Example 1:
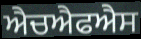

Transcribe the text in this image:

ਐਚਐਫਐਸ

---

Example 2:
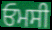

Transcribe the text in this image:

ਓਮਸੀ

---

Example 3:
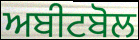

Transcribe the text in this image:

ਅਬੀਟਬੋਲ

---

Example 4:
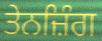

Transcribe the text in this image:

ਤੇਨਜ਼ਿੰਗ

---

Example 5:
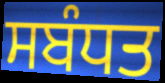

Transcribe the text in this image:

ਸਬੰਧਤ